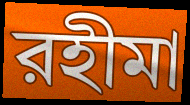
রহীমা